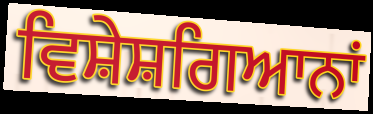
ਵਿਸ਼ੇਸ਼ਗਿਆਨਾਂ